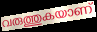
വരുത്തുകയാണ്